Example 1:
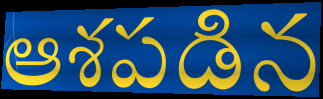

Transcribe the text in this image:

ఆశపడిన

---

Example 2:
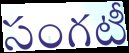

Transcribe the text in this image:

సంగటీ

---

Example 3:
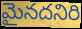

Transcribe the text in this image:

మైనదనిరి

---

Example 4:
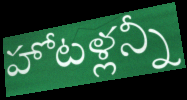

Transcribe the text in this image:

హోటళ్లన్నీ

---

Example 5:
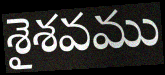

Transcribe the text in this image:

శైశవము